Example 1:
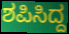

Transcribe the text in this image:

ಶಪಿಸಿದ್ದ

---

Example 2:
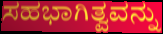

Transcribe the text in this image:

ಸಹಭಾಗಿತ್ವವನ್ನು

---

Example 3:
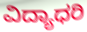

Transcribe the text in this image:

ವಿದ್ಯಾಧರಿ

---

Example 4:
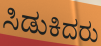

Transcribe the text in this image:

ಸಿಡುಕಿದರು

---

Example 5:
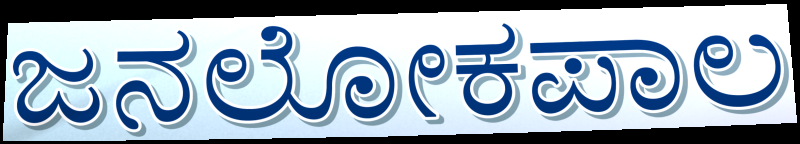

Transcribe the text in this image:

ಜನಲೋಕಪಾಲ